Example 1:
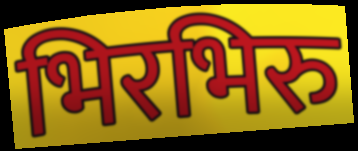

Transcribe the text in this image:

भिरभिरु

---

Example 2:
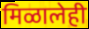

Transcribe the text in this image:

मिळालेही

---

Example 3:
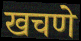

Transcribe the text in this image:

खचणे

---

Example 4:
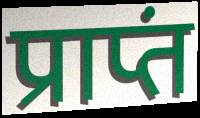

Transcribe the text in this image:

प्राप्तं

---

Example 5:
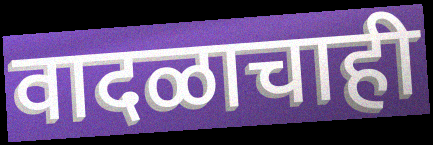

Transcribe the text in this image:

वादळाचाही